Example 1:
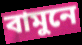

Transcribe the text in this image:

বামুনে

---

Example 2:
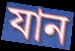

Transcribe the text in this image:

যান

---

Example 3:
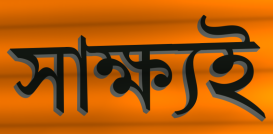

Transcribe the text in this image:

সাক্ষ্যই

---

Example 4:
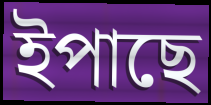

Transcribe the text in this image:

ইপাছে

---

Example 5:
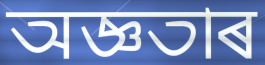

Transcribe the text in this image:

অজ্ঞতাৰ